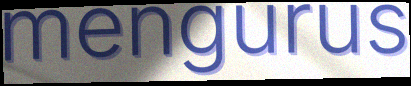
mengurus